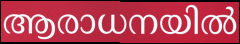
ആരാധനയിൽ